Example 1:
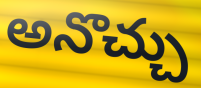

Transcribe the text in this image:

అనొచ్చు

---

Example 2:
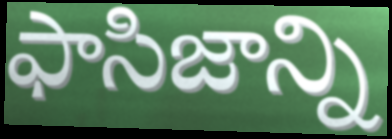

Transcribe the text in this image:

ఫాసిజాన్ని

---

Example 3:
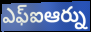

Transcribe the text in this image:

ఎఫ్ఐఆర్ను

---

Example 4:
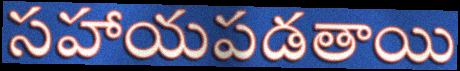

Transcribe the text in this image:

సహాయపడతాయి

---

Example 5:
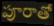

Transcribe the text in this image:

పూరాతో